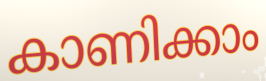
കാണിക്കാം